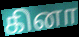
கினா